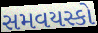
સમવયસ્કો